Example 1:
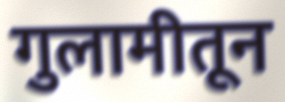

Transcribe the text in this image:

गुलामीतून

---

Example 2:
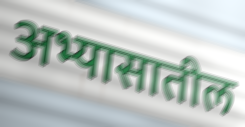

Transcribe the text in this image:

अभ्यासातील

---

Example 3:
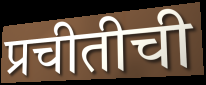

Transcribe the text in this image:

प्रचीतीची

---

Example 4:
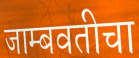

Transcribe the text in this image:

जाम्बवतीचा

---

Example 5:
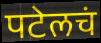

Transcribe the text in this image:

पटेलचं